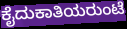
ಕೈದುಕಾತಿಯರುಂಟೆ